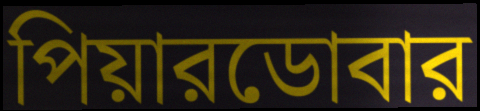
পিয়ারডোবার